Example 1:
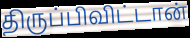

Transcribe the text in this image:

திருப்பிவிட்டான்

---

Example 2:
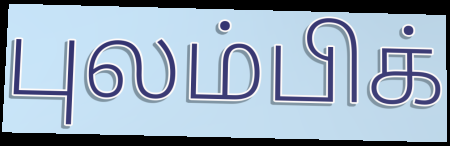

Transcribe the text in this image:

புலம்பிக்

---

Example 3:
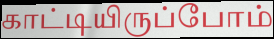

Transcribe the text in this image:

காட்டியிருப்போம்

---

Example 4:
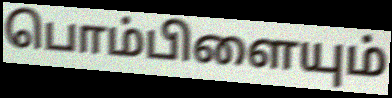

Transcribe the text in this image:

பொம்பிளையும்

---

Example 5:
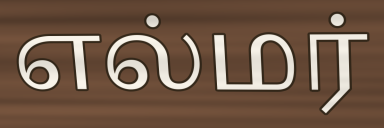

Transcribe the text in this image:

எல்மர்